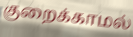
குறைக்காமல்